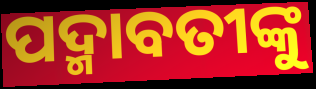
ପଦ୍ମାବତୀଙ୍କୁ